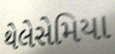
થેલેસેમિયા